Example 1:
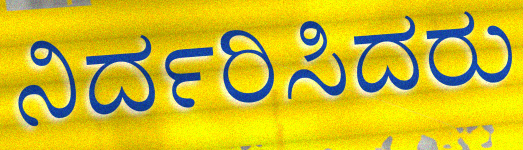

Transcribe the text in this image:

ನಿರ್ದರಿಸಿದರು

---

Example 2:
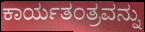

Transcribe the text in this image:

ಕಾರ್ಯತಂತ್ರವನ್ನು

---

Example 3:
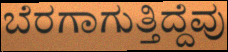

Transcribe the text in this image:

ಬೆರಗಾಗುತ್ತಿದ್ದೆವು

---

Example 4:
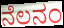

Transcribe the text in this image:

ನೆಲನಂ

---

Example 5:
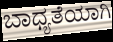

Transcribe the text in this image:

ಬಾಧ್ಯತೆಯಾಗಿ